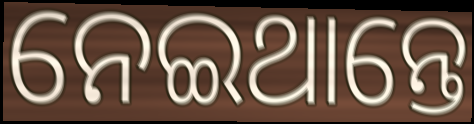
ନେଇଥାନ୍ତେ